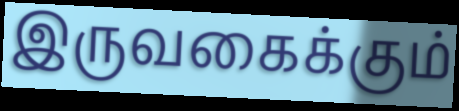
இருவகைக்கும்